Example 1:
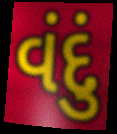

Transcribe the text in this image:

વંદું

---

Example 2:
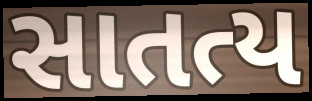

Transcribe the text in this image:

સાતત્ય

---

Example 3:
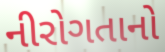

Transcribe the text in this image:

નીરોગતાનો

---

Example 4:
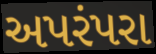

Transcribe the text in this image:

અપરંપરા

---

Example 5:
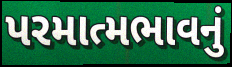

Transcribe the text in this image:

પરમાત્મભાવનું